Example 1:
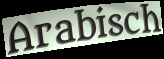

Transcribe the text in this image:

Arabisch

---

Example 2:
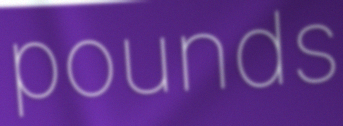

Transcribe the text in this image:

pounds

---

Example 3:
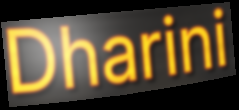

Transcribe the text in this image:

Dharini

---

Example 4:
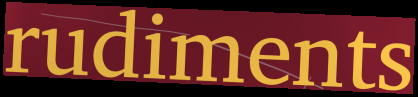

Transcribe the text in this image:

rudiments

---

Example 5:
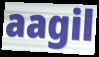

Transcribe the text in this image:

aagil